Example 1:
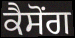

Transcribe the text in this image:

ਕੈਸੋਂਗ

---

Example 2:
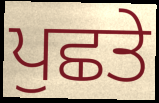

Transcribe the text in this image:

ਪੁਛਤੇ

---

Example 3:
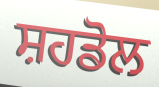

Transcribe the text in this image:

ਸ਼ਹਡੋਲ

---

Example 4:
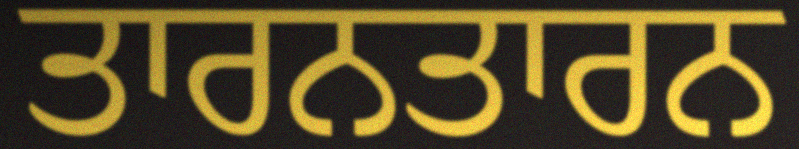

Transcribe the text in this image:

ਤਾਰਨਤਾਰਨ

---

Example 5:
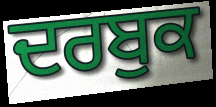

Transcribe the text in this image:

ਦਰਬੁਕ